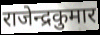
राजेन्द्रकुमार